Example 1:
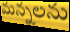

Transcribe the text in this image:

మన్నలను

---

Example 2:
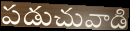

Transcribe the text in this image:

పడుచువాడి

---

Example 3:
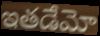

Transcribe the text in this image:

ఇతడేమో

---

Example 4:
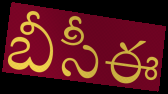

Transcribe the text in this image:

బీసీఈ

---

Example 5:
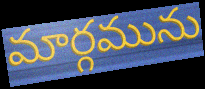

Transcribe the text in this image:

మార్గమును